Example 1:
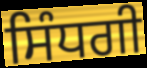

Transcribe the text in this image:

ਸਿੰਧਗੀ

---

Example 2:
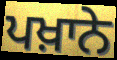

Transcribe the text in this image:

ਪਖ਼ਾਨੇ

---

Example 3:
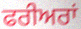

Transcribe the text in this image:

ਫਰੀਅਰਾਂ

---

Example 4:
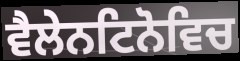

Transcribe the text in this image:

ਵੈਲੇਨਟਿਨੋਵਿਚ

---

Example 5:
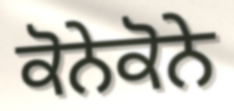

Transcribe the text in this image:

ਕੋਨੇਕੋਨੇ